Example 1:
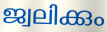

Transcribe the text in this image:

ജ്വലിക്കും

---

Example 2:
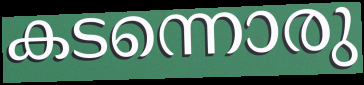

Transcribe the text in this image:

കടന്നൊരു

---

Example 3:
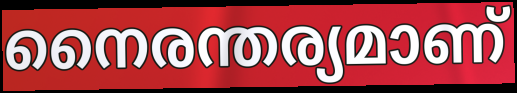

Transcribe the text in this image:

നൈരന്തര്യമാണ്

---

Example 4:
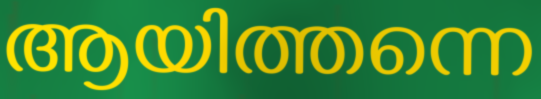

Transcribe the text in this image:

ആയിത്തന്നെ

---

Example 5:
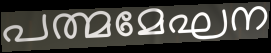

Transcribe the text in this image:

പത്മമേഘന